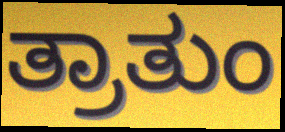
ತ್ರಾತುಂ